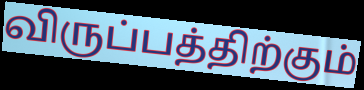
விருப்பத்திற்கும்